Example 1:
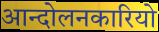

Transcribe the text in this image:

आन्दोलनकारियो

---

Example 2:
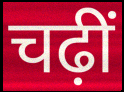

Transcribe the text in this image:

चढ़ीं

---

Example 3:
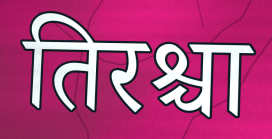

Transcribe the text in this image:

तिरश्चा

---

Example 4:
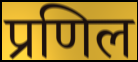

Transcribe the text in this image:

प्रणिल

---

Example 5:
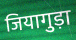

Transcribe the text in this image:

जियागुड़ा